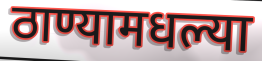
ठाण्यामधल्या